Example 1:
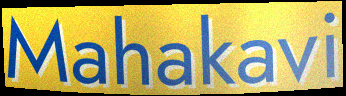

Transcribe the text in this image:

Mahakavi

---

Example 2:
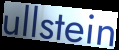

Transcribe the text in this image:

ullstein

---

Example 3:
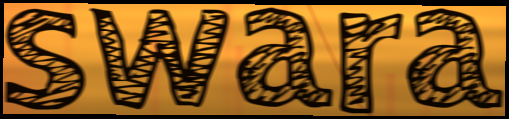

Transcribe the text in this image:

swara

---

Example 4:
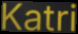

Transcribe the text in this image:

Katri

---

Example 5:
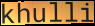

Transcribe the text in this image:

khulli